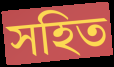
সহিত